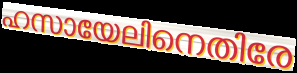
ഹസായേലിനെതിരേ